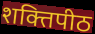
शक्तिपीठ